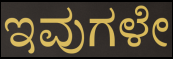
ಇವುಗಳೇ